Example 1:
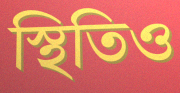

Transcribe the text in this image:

স্থিতিও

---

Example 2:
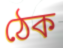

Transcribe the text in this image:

ঠেক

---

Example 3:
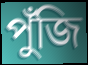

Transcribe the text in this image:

পুঁজি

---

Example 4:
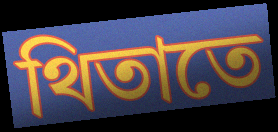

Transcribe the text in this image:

থিতাতে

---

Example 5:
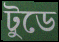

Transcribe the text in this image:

টুডে